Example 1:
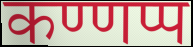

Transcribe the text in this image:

कण्णप्प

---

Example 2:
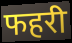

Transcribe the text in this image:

फहरी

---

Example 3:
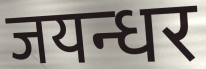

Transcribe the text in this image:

जयन्धर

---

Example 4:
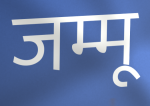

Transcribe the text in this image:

जम्‍मू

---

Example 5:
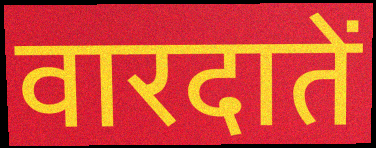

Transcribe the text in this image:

वारदातें